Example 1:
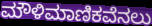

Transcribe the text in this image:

ಮೌಳಿಮಾಣಿಕವೆನಲು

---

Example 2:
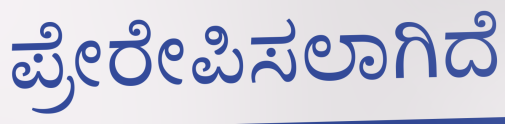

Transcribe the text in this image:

ಪ್ರೇರೇಪಿಸಲಾಗಿದೆ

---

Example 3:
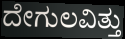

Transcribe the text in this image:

ದೇಗುಲವಿತ್ತು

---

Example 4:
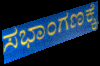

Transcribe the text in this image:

ಸಭಾಂಗಣಕ್ಕೆ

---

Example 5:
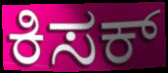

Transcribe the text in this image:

ಕಿಸಕ್